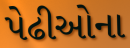
પેઢીઓના